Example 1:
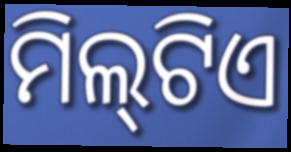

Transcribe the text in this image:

ମିଲ୍‌ଟିଏ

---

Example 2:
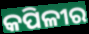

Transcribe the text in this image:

କପିଳୀର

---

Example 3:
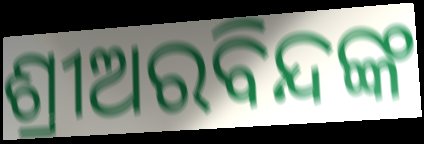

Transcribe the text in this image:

ଶ୍ରୀଅରବିନ୍ଦଙ୍କ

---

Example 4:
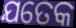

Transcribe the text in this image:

ଯତେକ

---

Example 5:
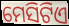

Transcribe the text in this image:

ମେସିଟିଏ